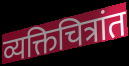
व्यक्तिचित्रांत